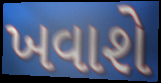
ખવાશે